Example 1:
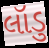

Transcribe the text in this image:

લૉડુ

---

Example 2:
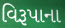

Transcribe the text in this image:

વિરૂપાના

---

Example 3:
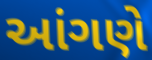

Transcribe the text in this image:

આંગણે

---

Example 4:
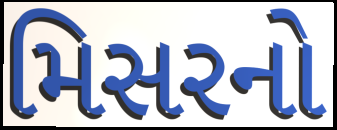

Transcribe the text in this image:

મિસરનો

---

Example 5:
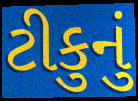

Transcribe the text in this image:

ટીકુનું